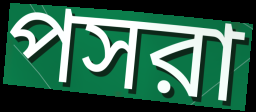
পসরা